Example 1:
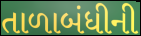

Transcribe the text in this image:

તાળાબંધીની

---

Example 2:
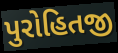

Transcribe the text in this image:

પુરોહિતજી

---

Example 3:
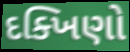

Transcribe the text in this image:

દક્ખિણો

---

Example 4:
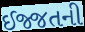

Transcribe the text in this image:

ઈજ્જતની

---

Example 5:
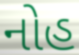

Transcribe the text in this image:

નોહ